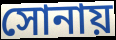
সোনায়